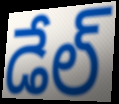
డేల్